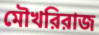
মৌখরিরাজ